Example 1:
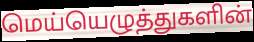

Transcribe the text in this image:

மெய்யெழுத்துகளின்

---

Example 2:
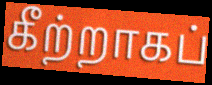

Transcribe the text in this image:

கீற்றாகப்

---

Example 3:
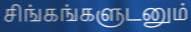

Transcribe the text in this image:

சிங்கங்களுடனும்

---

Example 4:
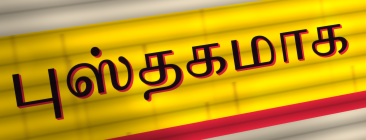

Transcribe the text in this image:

புஸ்தகமாக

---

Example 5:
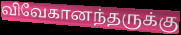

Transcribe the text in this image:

விவேகானந்தருக்கு